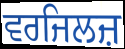
ਵਰਜਿਲਜ਼